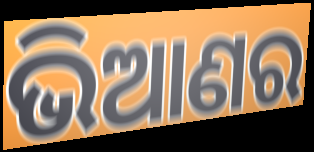
ଭିଆଣର